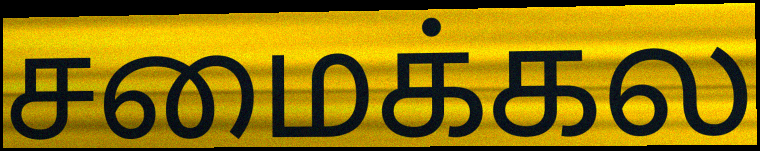
சமைக்கல